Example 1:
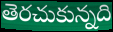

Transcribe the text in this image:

తెరచుకున్నది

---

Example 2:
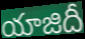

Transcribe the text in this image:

యాజిదీ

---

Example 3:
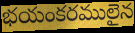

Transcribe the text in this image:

భయంకరములైన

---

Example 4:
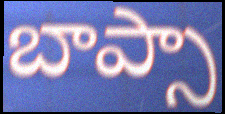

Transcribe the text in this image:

బాప్సా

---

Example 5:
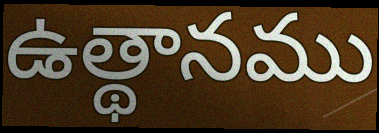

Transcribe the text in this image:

ఉత్థానము